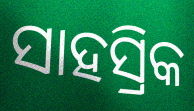
ସାହସ୍ରିକ